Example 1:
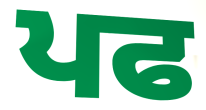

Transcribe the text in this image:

ਪਫ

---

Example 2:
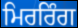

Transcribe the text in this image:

ਮਿਰਰਿੰਗ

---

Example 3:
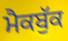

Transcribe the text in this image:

ਮੈਕਬੁੱਕ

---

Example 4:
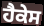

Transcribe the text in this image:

ਹੈਕੇਸ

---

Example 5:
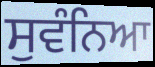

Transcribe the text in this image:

ਸੁਵੰਨਿਆ